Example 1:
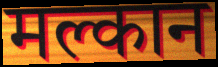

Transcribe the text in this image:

मल्कान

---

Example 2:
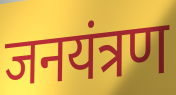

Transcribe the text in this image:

जनयंत्रण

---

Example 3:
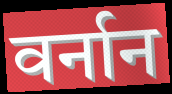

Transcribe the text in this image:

वर्नान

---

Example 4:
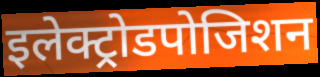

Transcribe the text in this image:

इलेक्ट्रोडपोजिशन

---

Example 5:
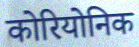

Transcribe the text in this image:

कोरियोनिक